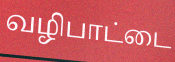
வழிபாட்டை